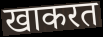
खाकरत